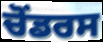
ਚੋਂਡਰਸ